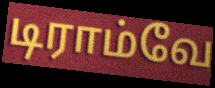
டிராம்வே